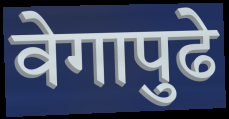
वेगापुढे